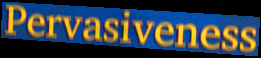
Pervasiveness